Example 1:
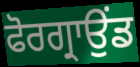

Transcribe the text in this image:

ਫੋਰਗ੍ਰਾਉਂਡ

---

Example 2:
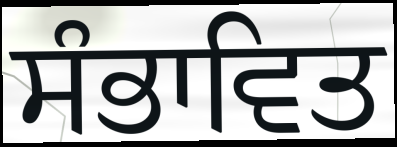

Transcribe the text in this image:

ਸੰਭਾਵਿਤ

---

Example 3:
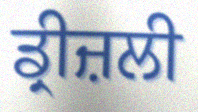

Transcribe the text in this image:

ਡ੍ਰੀਜ਼ਲੀ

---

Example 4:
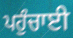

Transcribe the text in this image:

ਪਹੁੰਚਾਈ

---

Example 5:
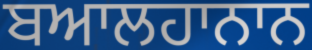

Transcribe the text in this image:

ਬਆਲਹਾਨਾਨ